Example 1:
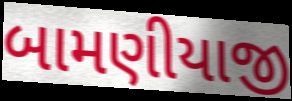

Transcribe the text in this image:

બામણીયાજી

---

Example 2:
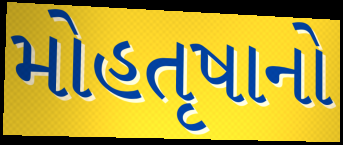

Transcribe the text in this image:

મોહતૃષાનો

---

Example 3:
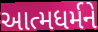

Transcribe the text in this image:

આત્મધર્મને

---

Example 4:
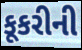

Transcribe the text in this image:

કૂકરીની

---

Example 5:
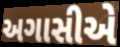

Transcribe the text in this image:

અગાસીએ